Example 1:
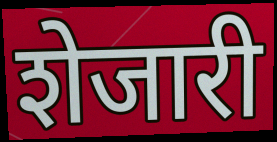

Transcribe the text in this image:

शेजारी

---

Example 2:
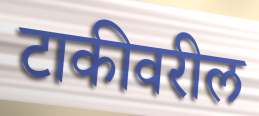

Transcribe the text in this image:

टाकीवरील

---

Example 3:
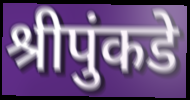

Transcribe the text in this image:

श्रीपुंकडे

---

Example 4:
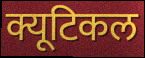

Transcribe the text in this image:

क्यूटिकल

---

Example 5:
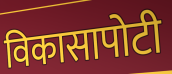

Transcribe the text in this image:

विकासापोटी